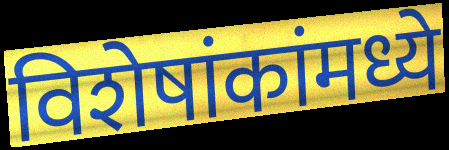
विशेषांकांमध्ये